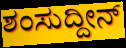
ಶಂಸುದ್ದೀನ್